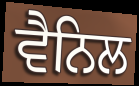
ਵੈਨਿਲ